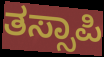
ತಸ್ಸಾಪಿ